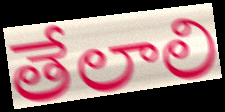
తేలాలి